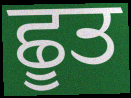
ਛੂਤ